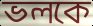
ভলকে